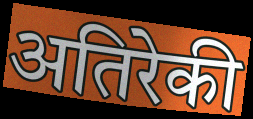
अतिरेकी